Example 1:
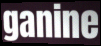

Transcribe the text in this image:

ganine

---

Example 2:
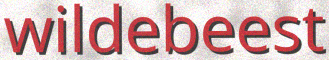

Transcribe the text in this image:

wildebeest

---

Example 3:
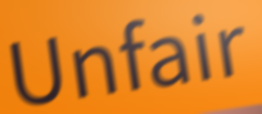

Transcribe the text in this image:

Unfair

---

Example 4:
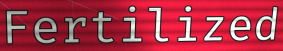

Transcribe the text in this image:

Fertilized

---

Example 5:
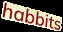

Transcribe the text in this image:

habbits